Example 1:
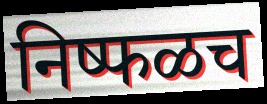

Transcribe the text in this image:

निष्फळच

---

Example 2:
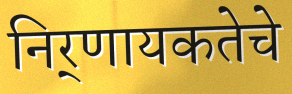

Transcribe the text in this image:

निर्णायकतेचे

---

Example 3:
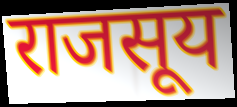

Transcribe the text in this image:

राजसूय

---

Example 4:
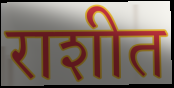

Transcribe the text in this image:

राशीत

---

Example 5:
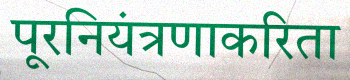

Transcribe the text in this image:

पूरनियंत्रणाकरिता